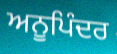
ਅਨੂਪਿੰਦਰ